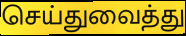
செய்துவைத்து